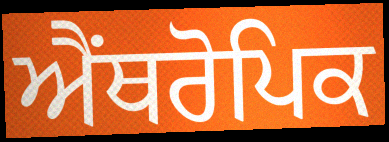
ਐਂਥਰੋਪਿਕ